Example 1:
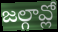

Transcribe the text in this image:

జల్గావ్లో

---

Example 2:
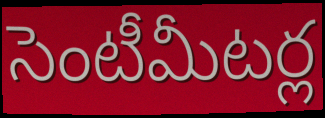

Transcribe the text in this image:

సెంటీమీటర్ల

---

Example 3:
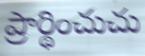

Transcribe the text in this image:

ప్రార్థించుచు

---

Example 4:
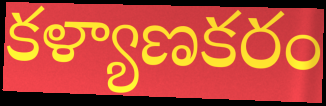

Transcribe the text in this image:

కళ్యాణకరం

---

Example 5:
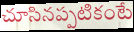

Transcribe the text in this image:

చూసినప్పటికంటే